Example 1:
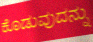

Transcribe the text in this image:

ಕೊಡುವುದನ್ನು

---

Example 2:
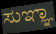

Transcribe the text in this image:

ಸುಞ್ಞಾ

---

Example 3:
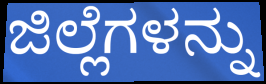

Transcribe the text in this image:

ಜಿಲ್ಲೆಗಳನ್ನು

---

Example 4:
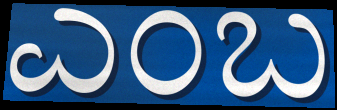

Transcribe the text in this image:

ಎಂಬ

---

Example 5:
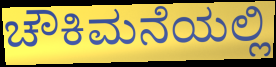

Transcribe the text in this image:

ಚೌಕಿಮನೆಯಲ್ಲಿ